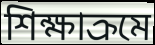
শিক্ষাক্রমে